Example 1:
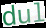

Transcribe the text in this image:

dul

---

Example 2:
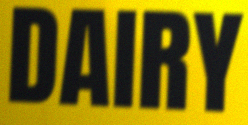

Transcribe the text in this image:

DAIRY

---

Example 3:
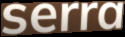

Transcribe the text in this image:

serra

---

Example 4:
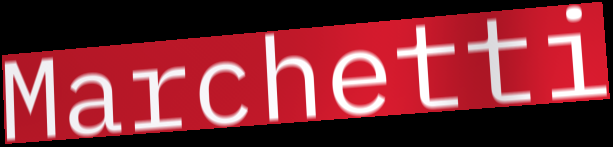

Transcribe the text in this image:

Marchetti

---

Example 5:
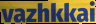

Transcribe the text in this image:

vazhkkai